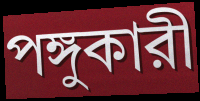
পঙ্গুকারী